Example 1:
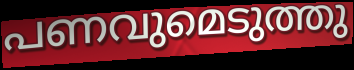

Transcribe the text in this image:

പണവുമെടുത്തു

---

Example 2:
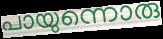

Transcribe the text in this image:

പായുന്നൊരു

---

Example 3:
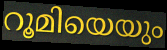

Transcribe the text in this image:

റൂമിയെയും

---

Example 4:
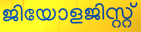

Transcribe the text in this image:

ജിയോളജിസ്റ്റ്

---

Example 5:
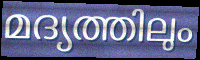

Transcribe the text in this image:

മദ്യത്തിലും